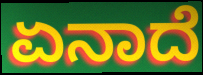
ಏನಾದೆ